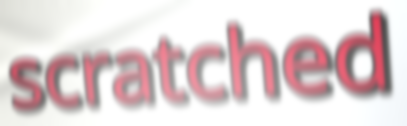
scratched